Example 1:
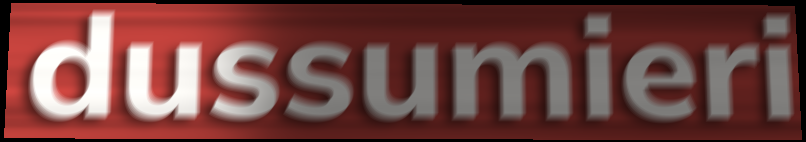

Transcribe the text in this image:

dussumieri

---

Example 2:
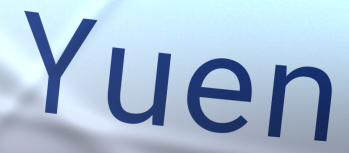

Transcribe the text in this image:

Yuen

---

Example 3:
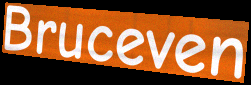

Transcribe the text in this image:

Bruceven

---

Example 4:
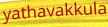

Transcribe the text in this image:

yathavakkula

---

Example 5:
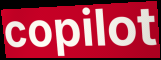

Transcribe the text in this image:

copilot